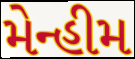
મેન્હીમ